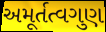
અમૂર્તત્વગુણ